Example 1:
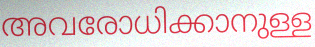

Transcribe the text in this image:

അവരോധിക്കാനുള്ള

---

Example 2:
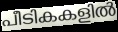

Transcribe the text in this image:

പീടികകളിൽ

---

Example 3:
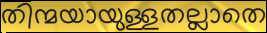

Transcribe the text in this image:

തിന്മയായുള്ളതല്ലാതെ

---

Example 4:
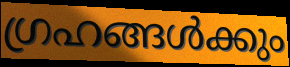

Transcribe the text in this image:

ഗ്രഹങ്ങൾക്കും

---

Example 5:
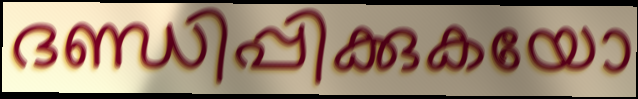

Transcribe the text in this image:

ദണ്ഡിപ്പിക്കുകയോ